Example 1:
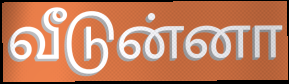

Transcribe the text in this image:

வீடுன்னா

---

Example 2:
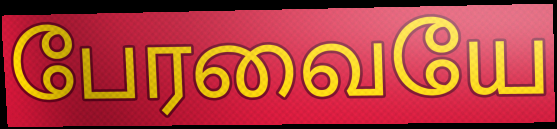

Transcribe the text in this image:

பேரவையே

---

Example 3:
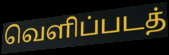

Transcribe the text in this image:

வெளிப்படத்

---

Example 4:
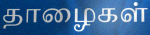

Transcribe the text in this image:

தாழைகள்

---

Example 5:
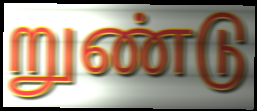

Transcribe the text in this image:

றுண்டு